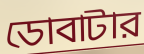
ডোবাটার